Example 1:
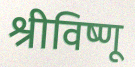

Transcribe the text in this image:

श्रीविष्णू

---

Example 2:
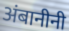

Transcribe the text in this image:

अंबानीनी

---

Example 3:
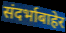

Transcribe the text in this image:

संदर्भाबाहेर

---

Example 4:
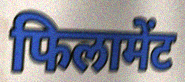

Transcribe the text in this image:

फिलामेंट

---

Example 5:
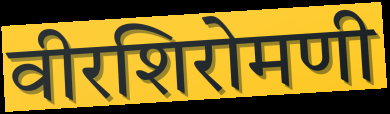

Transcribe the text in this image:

वीरशिरोमणी